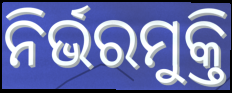
ନିର୍ଭରମୁକ୍ତି